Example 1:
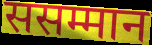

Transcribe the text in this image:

ससम्मान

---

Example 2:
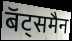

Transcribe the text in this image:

बॅट्समैन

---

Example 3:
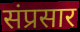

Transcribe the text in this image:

संप्रसार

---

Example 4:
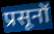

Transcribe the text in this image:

प्रसूनों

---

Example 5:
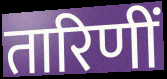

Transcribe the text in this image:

तारिणीं